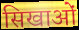
सिखाओं